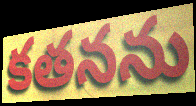
కతనను